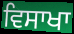
ਵਿਸਾਖਾ